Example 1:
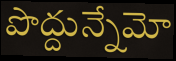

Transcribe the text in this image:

పొద్దున్నేమో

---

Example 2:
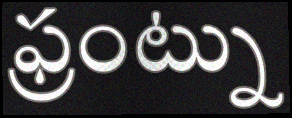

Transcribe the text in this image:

ఫ్రంట్ను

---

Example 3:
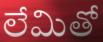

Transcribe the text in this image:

లేమితో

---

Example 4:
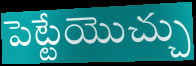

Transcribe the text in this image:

పెట్టేయొచ్చు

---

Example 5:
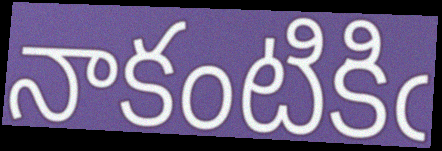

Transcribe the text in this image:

నాకంటికిఁ